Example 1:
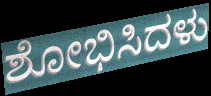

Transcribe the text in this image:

ಶೋಭಿಸಿದಳು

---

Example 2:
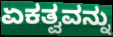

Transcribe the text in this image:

ಏಕತ್ವವನ್ನು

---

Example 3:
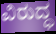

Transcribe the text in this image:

ವಿರುದ್ಧ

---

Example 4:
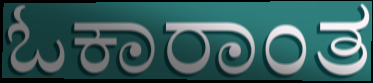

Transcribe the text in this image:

ಓಕಾರಾಂತ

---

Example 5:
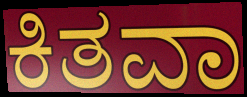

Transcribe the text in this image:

ಕಿತವಾ